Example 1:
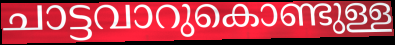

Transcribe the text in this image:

ചാട്ടവാറുകൊണ്ടുള്ള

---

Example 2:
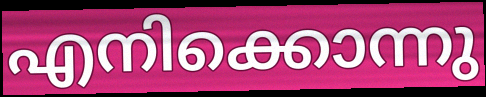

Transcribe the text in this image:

എനിക്കൊന്നു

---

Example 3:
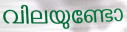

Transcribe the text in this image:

വിലയുണ്ടോ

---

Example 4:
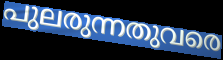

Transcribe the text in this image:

പുലരുന്നതുവരെ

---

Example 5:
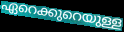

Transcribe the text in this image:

ഏറെക്കുറെയുള്ള